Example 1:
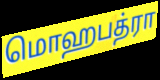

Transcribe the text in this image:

மொஹபத்ரா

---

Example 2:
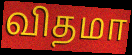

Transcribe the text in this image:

விதமா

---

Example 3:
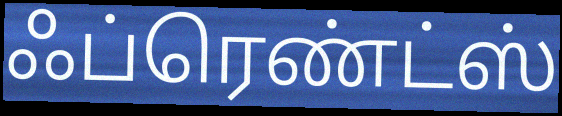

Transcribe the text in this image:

ஃப்ரெண்ட்ஸ்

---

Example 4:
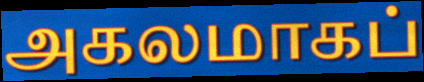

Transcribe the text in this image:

அகலமாகப்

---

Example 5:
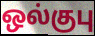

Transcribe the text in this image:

ஒல்குபு